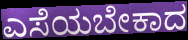
ಎಸೆಯಬೇಕಾದ